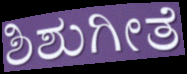
ಶಿಶುಗೀತೆ